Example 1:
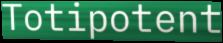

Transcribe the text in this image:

Totipotent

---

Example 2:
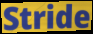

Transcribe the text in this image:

Stride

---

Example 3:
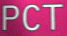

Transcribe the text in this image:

PCT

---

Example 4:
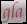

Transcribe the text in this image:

gla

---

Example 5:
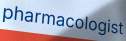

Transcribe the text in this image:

pharmacologist